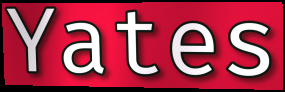
Yates